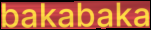
bakabaka